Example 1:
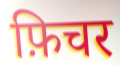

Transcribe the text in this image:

फ़िचर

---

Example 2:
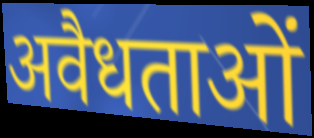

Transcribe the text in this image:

अवैधताओं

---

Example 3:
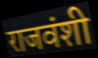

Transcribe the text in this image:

राजवंशी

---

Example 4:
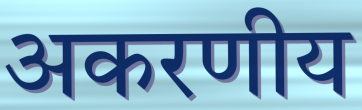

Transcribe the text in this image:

अकरणीय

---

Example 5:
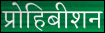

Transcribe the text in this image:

प्रोहिबीशन